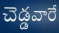
చెడ్డవారే